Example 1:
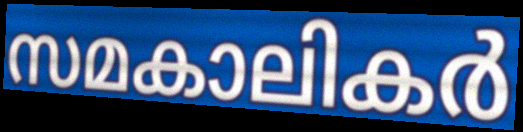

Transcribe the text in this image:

സമകാലികർ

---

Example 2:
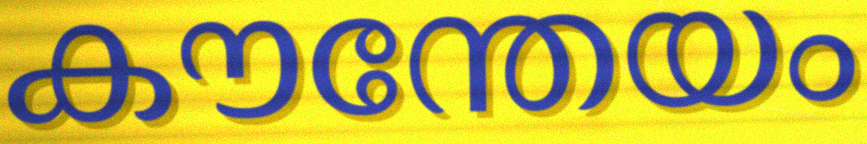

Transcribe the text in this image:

കൗന്തേയം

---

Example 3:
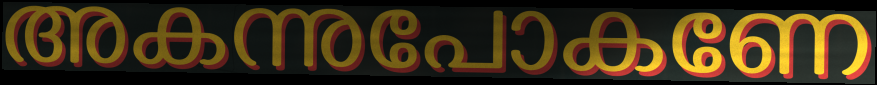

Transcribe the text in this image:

അകന്നുപോകണേ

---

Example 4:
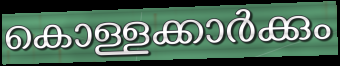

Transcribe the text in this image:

കൊള്ളക്കാർക്കും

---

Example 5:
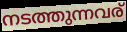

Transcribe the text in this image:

നടത്തുന്നവര്